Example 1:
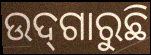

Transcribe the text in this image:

ଉଦ୍‌ଗାରୁଛି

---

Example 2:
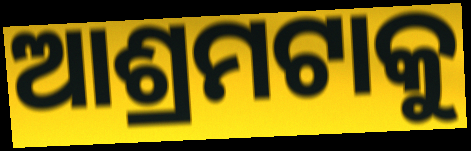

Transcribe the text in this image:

ଆଶ୍ରମଟାକୁ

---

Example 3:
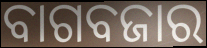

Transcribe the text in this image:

ବାଗବଜାର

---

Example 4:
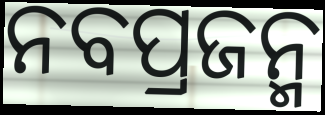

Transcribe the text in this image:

ନବପ୍ରଜନ୍ମ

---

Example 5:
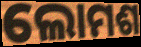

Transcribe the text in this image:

ଲୋମଶ